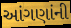
આંગણાંની